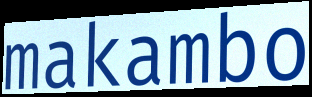
makambo